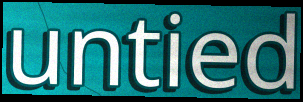
untied